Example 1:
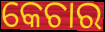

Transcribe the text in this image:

କେଚାର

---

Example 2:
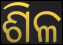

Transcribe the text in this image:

ଶିଳ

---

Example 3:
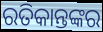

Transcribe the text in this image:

ରତିକାନ୍ତଙ୍କର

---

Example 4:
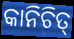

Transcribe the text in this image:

କାନିଚିତ୍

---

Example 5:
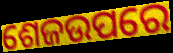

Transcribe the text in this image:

ଶେଜଉପରେ